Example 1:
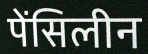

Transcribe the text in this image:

पेंसिलीन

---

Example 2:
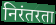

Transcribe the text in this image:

निरंतरता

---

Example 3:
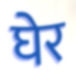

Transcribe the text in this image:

घेर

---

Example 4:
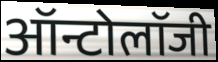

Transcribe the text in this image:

ऑन्टोलॉजी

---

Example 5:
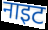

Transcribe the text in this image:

नाइट